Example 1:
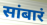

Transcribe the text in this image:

सांबारं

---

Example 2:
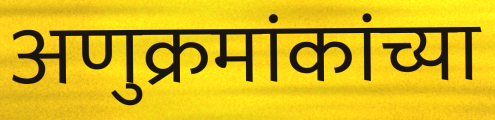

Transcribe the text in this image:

अणुक्रमांकांच्या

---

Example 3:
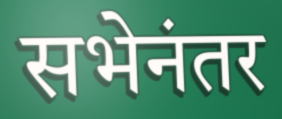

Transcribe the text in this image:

सभेनंतर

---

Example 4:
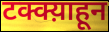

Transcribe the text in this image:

टक्क्य़ाहून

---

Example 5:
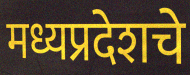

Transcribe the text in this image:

मध्यप्रदेशचे